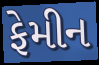
ફેમીન